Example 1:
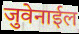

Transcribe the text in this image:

जुवेनाईल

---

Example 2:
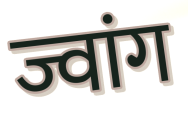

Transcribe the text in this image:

ज्वांग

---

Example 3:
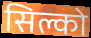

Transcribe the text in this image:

सिल्को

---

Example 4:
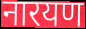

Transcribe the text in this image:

नारयण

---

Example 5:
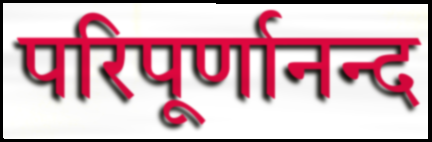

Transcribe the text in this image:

परिपूर्णानन्द